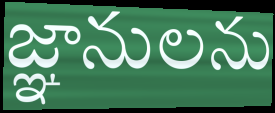
జ్ఞానులను